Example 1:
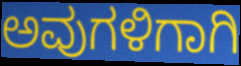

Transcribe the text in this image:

ಅವುಗಳಿಗಾಗಿ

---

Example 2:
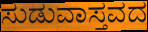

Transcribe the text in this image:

ಸುಡುವಾಸ್ತವದ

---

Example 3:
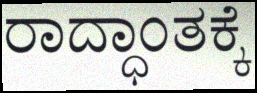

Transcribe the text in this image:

ರಾದ್ಧಾಂತಕ್ಕೆ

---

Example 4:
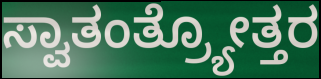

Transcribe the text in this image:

ಸ್ವಾತಂತ್ರ್ಯೋತ್ತರ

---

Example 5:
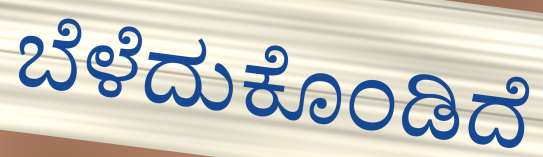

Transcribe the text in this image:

ಬೆಳೆದುಕೊಂಡಿದೆ